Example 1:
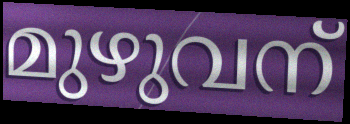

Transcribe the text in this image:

മുഴുവന്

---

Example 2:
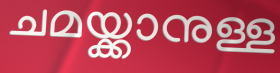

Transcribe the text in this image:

ചമയ്ക്കാനുള്ള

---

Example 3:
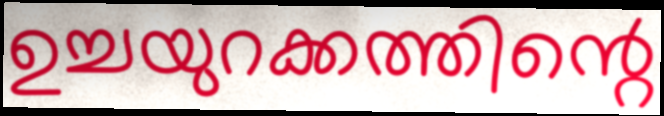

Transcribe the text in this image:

ഉച്ചയുറക്കത്തിന്റെ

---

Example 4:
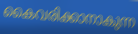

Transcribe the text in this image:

കൈവരിക്കാനാകുന്ന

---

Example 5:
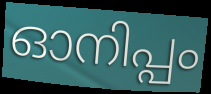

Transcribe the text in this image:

ഓനിപ്പം